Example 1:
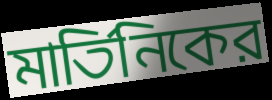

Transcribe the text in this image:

মার্তিনিকের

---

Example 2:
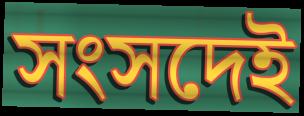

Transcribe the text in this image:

সংসদেই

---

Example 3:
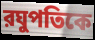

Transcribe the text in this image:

রঘুপতিকে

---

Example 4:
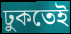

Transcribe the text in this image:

ঢুকতেই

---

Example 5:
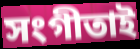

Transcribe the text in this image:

সংগীতাই